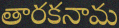
తారకనామ